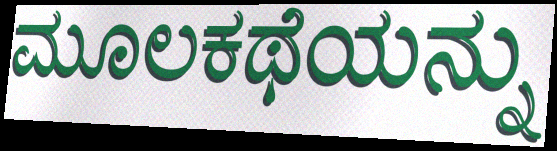
ಮೂಲಕಥೆಯನ್ನು